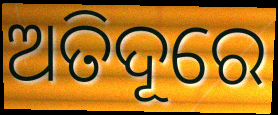
ଅତିଦୂରେ